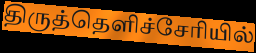
திருத்தெளிச்சேரியில்